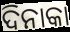
ଦିନାକା